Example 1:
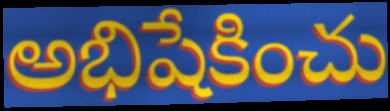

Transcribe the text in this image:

అభిషేకించు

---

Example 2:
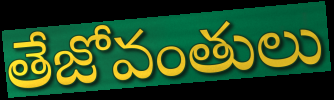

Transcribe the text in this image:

తేజోవంతులు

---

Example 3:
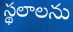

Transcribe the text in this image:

స్థలాలను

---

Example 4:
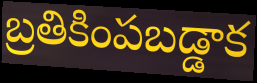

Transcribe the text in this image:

బ్రతికింపబడ్డాక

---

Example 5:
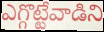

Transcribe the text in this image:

ఎగ్గొట్టేవాడిని